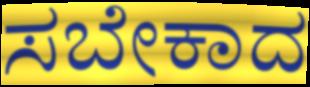
ಸಬೇಕಾದ